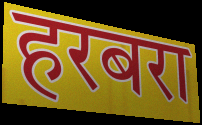
हरबरा